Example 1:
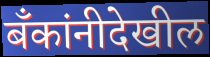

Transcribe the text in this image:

बँकांनीदेखील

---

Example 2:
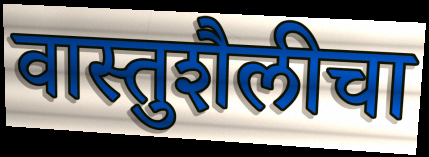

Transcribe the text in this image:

वास्तुशैलीचा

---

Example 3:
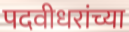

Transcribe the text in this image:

पदवीधरांच्या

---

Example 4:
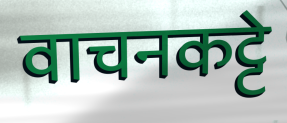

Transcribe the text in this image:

वाचनकट्टे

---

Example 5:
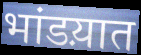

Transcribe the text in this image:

भांडय़ात